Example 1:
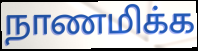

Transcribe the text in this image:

நாணமிக்க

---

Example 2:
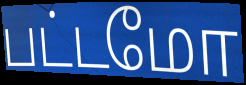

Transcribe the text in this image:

பட்டமோ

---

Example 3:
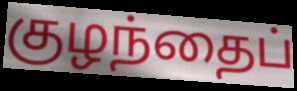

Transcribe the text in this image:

குழந்தைப்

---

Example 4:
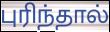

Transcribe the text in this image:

புரிந்தால்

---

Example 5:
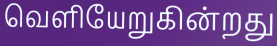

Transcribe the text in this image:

வெளியேறுகின்றது